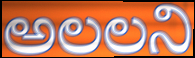
అలలని